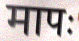
मापः